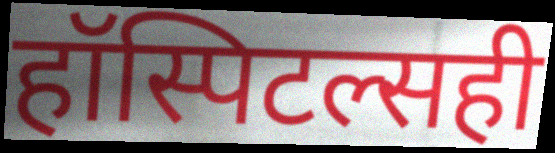
हॉस्पिटल्सही